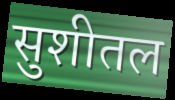
सुशीतल